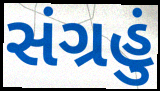
સંગ્રહું